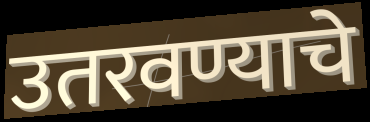
उतरवण्याचे